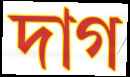
দাগ